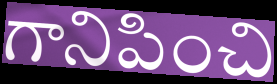
గానిపించి